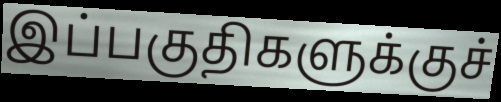
இப்பகுதிகளுக்குச்